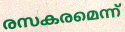
രസകരമെന്ന്